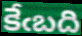
కేఁబది